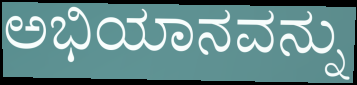
ಅಭಿಯಾನವನ್ನು